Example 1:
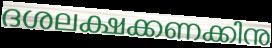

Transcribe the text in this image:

ദശലക്ഷക്കണക്കിനു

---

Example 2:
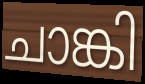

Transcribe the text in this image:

ചാങ്കി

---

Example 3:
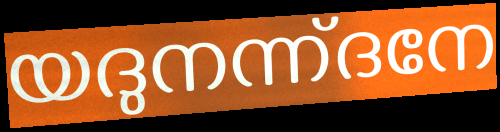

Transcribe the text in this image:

യദുനന്ന്ദനേ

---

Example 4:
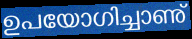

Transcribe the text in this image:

ഉപയോഗിച്ചാണു്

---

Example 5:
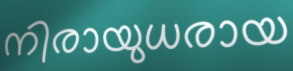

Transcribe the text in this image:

നിരായുധരായ